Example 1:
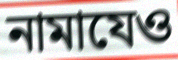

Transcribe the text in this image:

নামাযেও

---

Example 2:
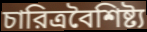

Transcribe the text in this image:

চারিত্রবৈশিষ্ট্য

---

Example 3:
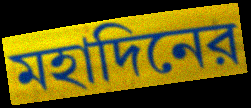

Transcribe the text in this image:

মহাদিনের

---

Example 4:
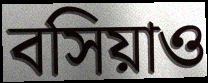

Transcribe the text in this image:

বসিয়াও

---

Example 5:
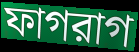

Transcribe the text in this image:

ফাগরাগ